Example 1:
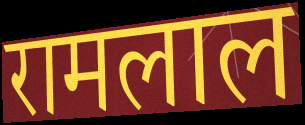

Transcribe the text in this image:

रामलाल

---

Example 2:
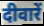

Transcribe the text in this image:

दीवारें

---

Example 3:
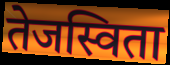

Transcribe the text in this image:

तेजस्विता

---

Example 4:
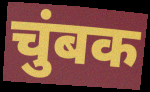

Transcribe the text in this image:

चुंबक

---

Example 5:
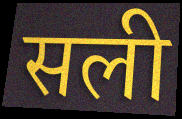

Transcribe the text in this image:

सली